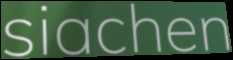
siachen